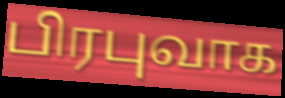
பிரபுவாக